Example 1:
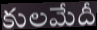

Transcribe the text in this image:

కులమేదీ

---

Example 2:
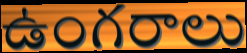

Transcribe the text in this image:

ఉంగరాలు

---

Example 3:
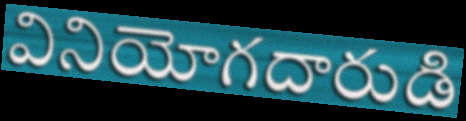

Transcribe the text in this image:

వినియోగదారుడి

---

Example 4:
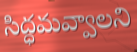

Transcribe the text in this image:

సిద్ధమవ్వాలని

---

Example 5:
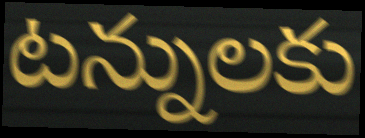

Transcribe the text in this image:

టన్నులకు